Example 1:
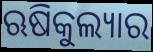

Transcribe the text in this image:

ଋଷିକୁଲ୍ୟାର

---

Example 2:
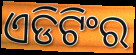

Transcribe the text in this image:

ଏଡିଟିଂର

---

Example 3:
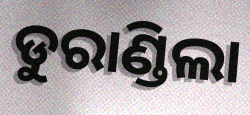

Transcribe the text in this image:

ଡୁରାଣ୍ଡିଲା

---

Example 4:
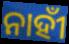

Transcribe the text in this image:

ନାହୀଁ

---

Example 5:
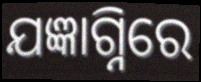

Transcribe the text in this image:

ଯଜ୍ଞାଗ୍ନିରେ